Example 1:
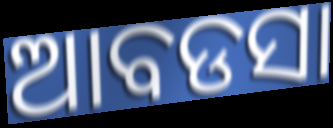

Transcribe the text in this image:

ଆବଡସା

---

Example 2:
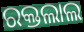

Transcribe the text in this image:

ରକ୍ତଲାଲ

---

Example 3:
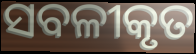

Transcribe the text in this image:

ସବଳୀକୃତ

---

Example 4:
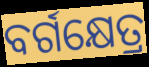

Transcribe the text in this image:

ବର୍ଗକ୍ଷେତ୍ର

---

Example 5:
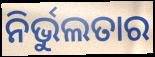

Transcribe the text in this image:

ନିର୍ଭୁଲତାର